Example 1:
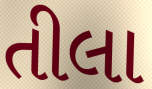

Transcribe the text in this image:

તીલા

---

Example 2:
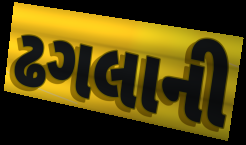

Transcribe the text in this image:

ઢગલાની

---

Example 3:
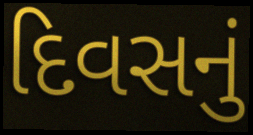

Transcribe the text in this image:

દિવસનું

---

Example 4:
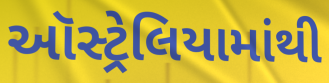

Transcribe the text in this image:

ઑસ્ટ્રેલિયામાંથી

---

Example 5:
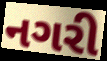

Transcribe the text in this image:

નગરી